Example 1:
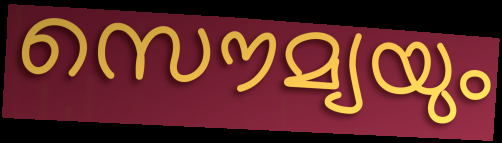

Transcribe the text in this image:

സൌമ്യയും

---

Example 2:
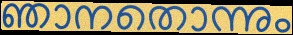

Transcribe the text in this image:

ഞാനതൊന്നും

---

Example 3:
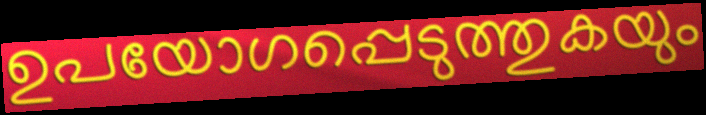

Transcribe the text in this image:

ഉപയോഗപ്പെടുത്തുകയും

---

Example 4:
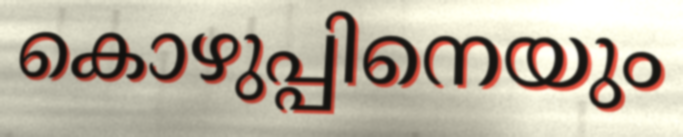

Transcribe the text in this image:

കൊഴുപ്പിനെയും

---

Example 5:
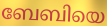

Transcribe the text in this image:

ബേബിയെ